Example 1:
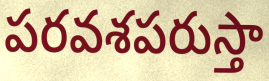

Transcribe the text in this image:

పరవశపరుస్తా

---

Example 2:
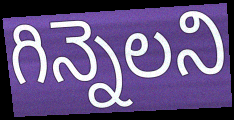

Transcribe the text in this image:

గిన్నెలని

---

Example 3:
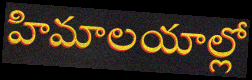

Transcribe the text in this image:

హిమాలయాల్లో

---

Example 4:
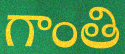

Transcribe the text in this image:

గాంతి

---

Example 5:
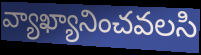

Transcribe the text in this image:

వ్యాఖ్యానించవలసి